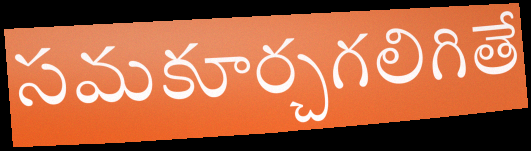
సమకూర్చగలిగితే